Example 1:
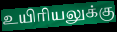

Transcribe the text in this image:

உயிரியலுக்கு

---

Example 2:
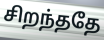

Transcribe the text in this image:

சிறந்ததே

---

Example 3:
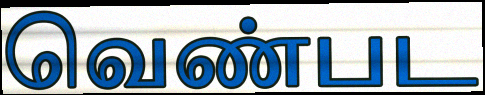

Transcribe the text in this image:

வெண்பட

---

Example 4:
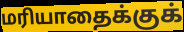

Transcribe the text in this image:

மரியாதைக்குக்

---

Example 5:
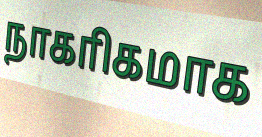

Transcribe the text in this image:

நாகரிகமாக